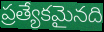
ప్రత్యేకమైనది